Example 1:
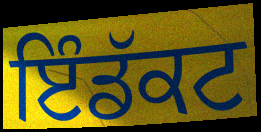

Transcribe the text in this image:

ਇੰਡੱਕਟ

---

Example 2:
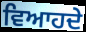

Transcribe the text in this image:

ਵਿਆਹਦੇ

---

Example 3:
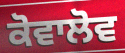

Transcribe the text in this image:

ਕੋਵਾਲੋਵ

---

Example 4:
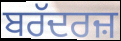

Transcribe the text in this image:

ਬਰੱਦਰਜ਼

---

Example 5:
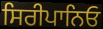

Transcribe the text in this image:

ਸਿਰੀਪਾਨਿਓ